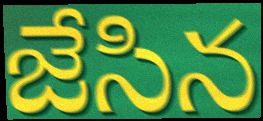
జేసిన